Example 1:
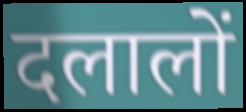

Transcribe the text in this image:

दलालों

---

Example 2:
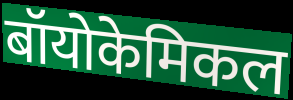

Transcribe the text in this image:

बॉयोकेमिकल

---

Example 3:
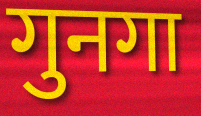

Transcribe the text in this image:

गुनगा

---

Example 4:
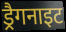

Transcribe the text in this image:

ड्रैगनाइट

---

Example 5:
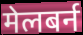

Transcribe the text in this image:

मेलबर्न